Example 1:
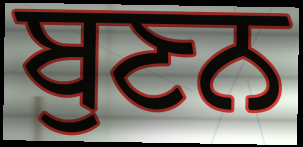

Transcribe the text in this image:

ਬੁਣਨ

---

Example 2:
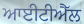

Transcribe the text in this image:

ਆਈਟੀਐੱਲ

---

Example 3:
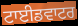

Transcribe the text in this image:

ਟਾਈਡਵਾਟਰ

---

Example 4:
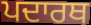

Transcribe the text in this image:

ਪਦਾਰਥ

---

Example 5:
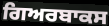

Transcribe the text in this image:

ਗਿਅਰਬਾਕਸ